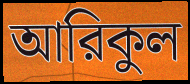
আরিকুল